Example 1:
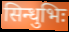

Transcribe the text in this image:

सिन्धुभिः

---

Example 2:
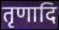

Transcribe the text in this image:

तृणादि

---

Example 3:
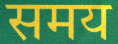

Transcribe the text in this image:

समय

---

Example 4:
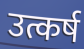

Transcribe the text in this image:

उत्कर्ष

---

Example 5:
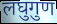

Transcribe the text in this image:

लघुगुण